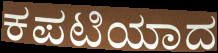
ಕಪಟಿಯಾದ